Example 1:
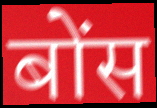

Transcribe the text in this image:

बोंस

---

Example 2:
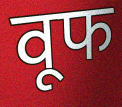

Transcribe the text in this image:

वूफ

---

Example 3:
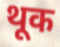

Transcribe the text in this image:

थूक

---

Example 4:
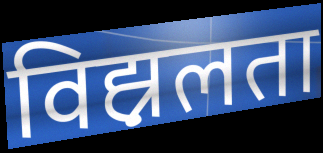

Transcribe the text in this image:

विह्नलता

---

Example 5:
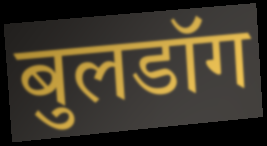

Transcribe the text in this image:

बुलडॉग